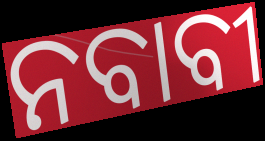
ନବାବୀ